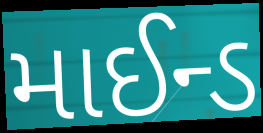
માઈન્ડ